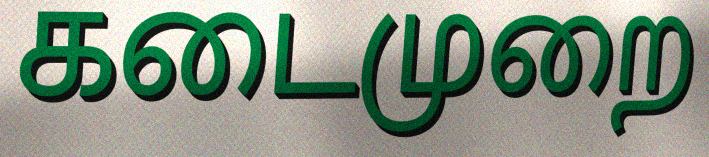
கடைமுறை